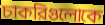
চাকরিগুলোকে